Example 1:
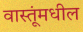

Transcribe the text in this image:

वास्तूंमधील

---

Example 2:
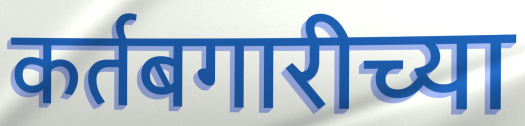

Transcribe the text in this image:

कर्तबगारीच्या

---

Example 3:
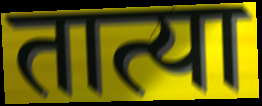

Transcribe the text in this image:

तात्या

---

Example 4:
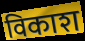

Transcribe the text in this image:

विकाश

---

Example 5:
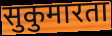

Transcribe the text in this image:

सुकुमारता